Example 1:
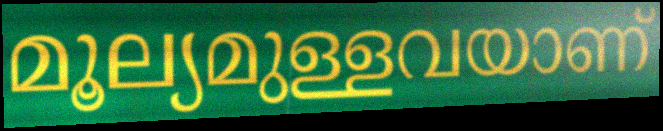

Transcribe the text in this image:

മൂല്യമുള്ളവയാണ്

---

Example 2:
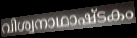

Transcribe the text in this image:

വിശ്വനാഥാഷ്ടകം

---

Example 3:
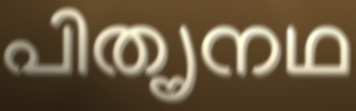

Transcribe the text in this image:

പിതൄനഥ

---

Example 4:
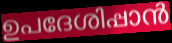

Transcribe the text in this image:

ഉപദേശിപ്പാൻ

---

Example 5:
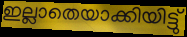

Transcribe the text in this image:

ഇല്ലാതെയാക്കിയിട്ടു്